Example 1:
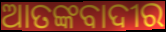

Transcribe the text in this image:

ଆତଙ୍କବାଦୀର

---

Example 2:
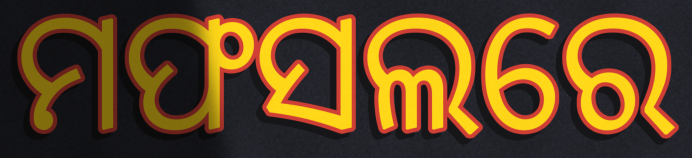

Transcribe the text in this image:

ମଫସଲରେ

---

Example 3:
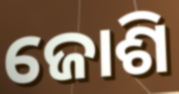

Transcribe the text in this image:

ଜୋଶି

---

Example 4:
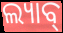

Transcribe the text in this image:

ଲ୍ୟାବ୍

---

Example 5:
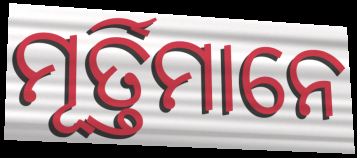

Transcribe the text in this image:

ମୂର୍ତ୍ତିମାନେ